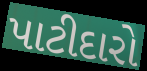
પાટીદારો